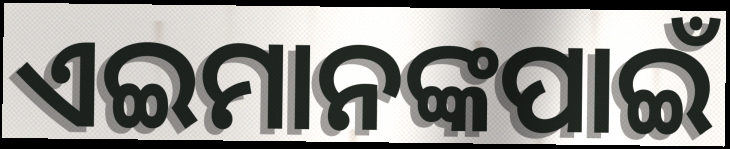
ଏଇମାନଙ୍କପାଇଁ